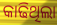
କାଢିଥିଲା